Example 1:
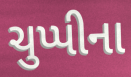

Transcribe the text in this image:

ચુપ્પીના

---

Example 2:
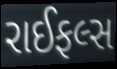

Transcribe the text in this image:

રાઈફલ્સ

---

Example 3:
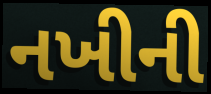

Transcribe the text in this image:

નખીની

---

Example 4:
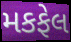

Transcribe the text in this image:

મકફેલ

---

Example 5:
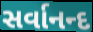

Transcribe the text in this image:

સર્વાનન્દ